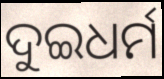
ଦୁଇଧର୍ମ